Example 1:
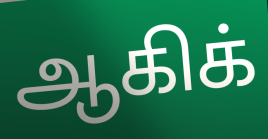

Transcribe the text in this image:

ஆகிக்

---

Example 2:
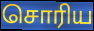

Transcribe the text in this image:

சொரிய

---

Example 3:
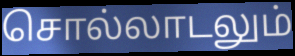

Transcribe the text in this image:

சொல்லாடலும்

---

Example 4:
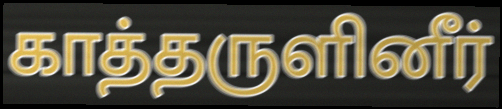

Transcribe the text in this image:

காத்தருளினீர்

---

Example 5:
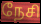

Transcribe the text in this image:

நேசி